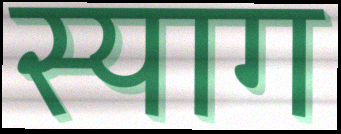
स्याग